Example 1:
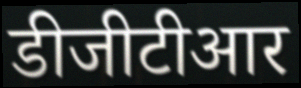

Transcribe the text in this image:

डीजीटीआर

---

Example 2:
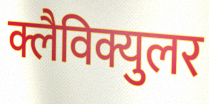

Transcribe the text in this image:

क्लैविक्युलर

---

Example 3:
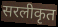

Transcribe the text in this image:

सरलीकृत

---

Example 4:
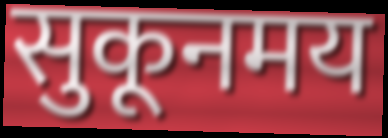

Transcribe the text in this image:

सुकूनमय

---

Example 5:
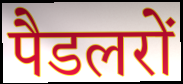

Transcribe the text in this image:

पैडलरों